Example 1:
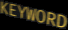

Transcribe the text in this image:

KEYWORD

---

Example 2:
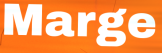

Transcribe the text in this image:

Marge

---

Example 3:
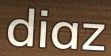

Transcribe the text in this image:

diaz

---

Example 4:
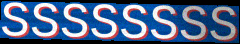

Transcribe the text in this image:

SSSSSSSS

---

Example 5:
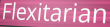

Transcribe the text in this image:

Flexitarian